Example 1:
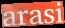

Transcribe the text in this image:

arasi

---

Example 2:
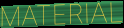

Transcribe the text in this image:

MATERIAL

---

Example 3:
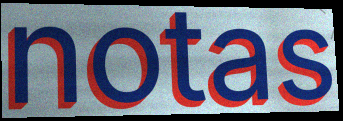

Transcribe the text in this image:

notas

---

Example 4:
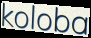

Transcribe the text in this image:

koloba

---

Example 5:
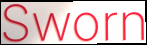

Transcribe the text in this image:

Sworn